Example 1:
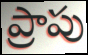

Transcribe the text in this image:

ప్రాపు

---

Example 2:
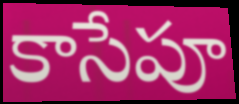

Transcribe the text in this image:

కాసేపూ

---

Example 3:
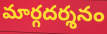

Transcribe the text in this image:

మార్గదర్శనం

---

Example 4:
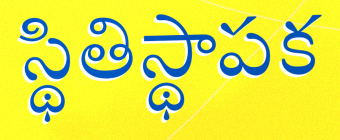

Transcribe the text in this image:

స్థితిస్థాపక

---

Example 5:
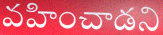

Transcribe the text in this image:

వహించాడని